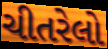
ચીતરેલો